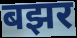
बझर